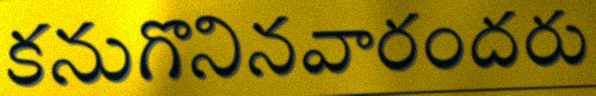
కనుగొనినవారందరు